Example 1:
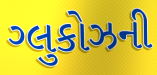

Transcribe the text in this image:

ગ્લુકોઝની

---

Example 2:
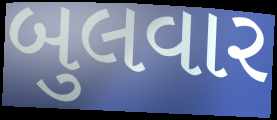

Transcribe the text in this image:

બુલવાર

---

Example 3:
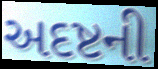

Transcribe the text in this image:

અદષ્ટની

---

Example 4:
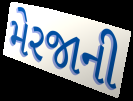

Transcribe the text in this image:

મેરજાની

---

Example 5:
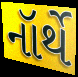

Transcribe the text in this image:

નૉર્થે